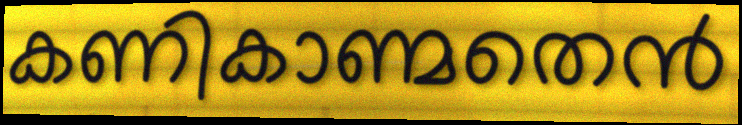
കണികാണ്മതെൻ